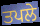
ਤਪਲੇ